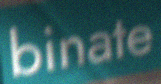
binate